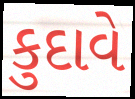
કુદાવે